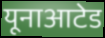
यूनाआटेड